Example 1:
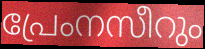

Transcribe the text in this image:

പ്രേംനസീറും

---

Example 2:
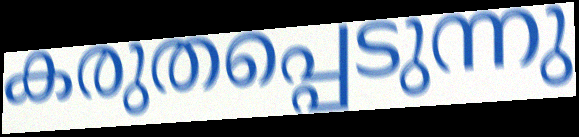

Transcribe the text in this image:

കരുതപ്പെടുന്നു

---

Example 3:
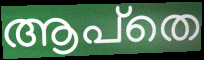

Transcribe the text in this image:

ആപ്‌തെ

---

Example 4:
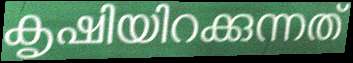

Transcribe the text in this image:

കൃഷിയിറക്കുന്നത്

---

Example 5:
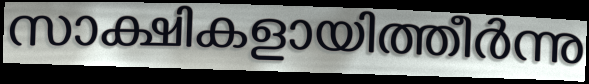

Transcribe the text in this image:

സാക്ഷികളായിത്തീർന്നു